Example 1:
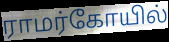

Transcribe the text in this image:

ராமர்கோயில்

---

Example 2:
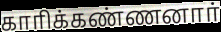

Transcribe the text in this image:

காரிக்கண்ணனார்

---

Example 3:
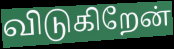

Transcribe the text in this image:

விடுகிறேன்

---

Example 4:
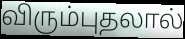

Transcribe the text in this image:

விரும்புதலால்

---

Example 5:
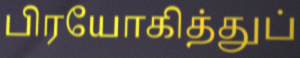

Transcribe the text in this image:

பிரயோகித்துப்